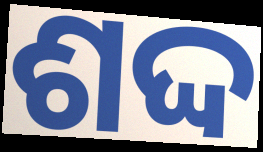
ଶଦ୍ଦ